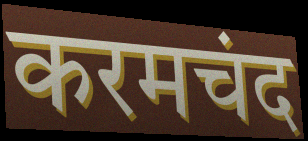
करमचंद